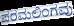
ಪರಮಲಿಂಗವು